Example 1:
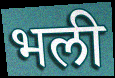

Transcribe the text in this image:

भली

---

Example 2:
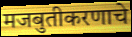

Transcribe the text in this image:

मजबुतीकरणाचे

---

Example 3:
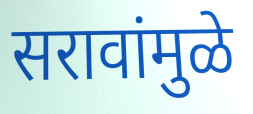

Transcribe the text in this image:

सरावांमुळे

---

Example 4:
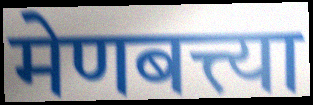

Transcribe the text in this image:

मेणबत्त्या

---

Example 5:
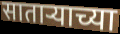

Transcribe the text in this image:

साताऱ्याच्या